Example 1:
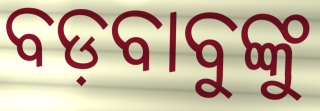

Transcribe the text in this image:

ବଡ଼ବାବୁଙ୍କୁ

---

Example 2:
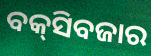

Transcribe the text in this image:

ବକ୍‍ସିବଜାର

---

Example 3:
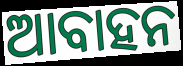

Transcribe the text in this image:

ଆବାହନ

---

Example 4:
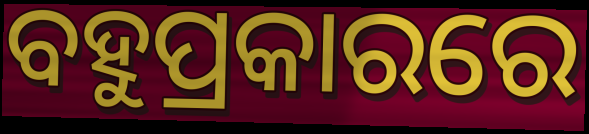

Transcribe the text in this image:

ବହୁପ୍ରକାରରେ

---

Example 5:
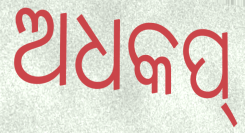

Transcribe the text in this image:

ଅଧକପ୍